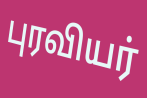
புரவியர்